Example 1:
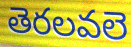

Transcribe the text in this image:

తెరలవలె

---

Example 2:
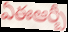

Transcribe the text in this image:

ఏఈఆర్బీ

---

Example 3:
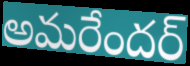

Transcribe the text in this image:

అమరేందర్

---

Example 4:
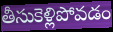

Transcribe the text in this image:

తీసుకెళ్లిపోవడం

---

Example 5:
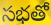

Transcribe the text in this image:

సభతో